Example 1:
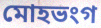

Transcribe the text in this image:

মোহভংগ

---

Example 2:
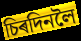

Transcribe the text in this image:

চিৰদিনলৈ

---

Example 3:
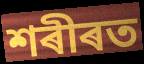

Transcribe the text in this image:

শৰীৰত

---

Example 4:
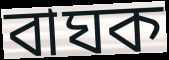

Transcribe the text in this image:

বাঘক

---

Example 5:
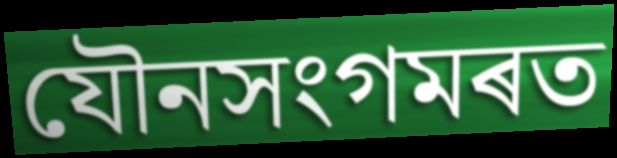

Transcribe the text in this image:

যৌনসংগমৰত